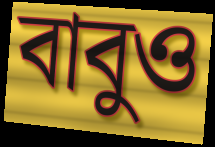
বাবুও